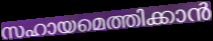
സഹായമെത്തിക്കാൻ